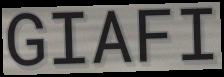
GIAFI